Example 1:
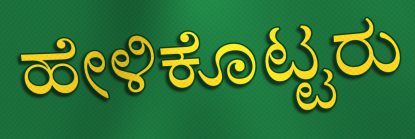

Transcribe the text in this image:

ಹೇಳಿಕೊಟ್ಟರು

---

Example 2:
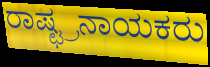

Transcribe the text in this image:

ರಾಷ್ಟ್ರನಾಯಕರು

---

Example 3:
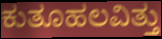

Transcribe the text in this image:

ಕುತೂಹಲವಿತ್ತು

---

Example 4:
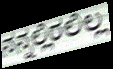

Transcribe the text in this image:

ನನ್ನಲ್ಲಿರಲಿಲ್ಲ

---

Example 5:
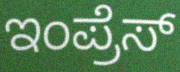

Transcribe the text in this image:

ಇಂಪ್ರೆಸ್